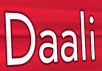
Daali